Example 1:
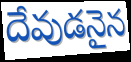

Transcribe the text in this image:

దేవుడనైన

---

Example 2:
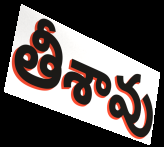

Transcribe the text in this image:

తీశావు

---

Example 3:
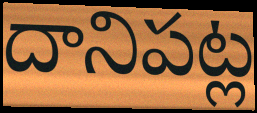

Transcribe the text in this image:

దానిపట్ల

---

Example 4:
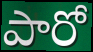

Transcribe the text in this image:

పారో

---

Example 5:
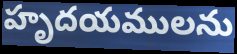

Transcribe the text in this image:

హృదయములను